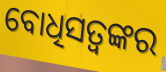
ବୋଧିସତ୍ୱଙ୍କର